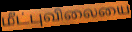
மீட்புவிலையை